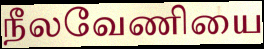
நீலவேணியை